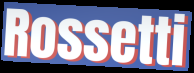
Rossetti